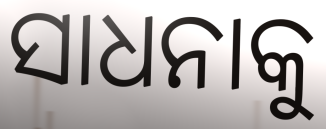
ସାଧନାକୁ